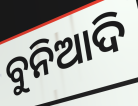
ବୁନିଆଦି